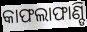
କାଫଲାଫାଣ୍ଡି